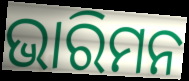
ଭାରିମନ